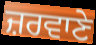
ਜ਼ਰਵਾਣੇ